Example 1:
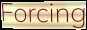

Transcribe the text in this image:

Forcing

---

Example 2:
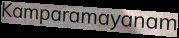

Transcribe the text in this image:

Kamparamayanam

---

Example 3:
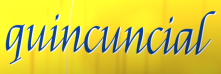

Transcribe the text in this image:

quincuncial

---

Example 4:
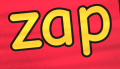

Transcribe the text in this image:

zap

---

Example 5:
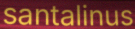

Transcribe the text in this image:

santalinus